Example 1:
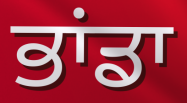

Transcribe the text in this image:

ਭਾਂਡਾ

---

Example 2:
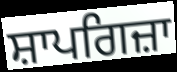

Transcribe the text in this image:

ਸ਼ਾਪਗਿਜ਼ਾ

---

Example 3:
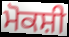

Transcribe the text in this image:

ਮੋਕਸ਼ੀ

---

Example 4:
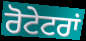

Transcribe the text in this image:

ਰੋਟੇਟਰਾਂ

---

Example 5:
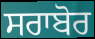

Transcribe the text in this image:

ਸਰਾਬੋਰ